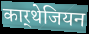
कार्थेजियन